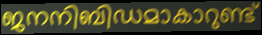
ജനനിബിഡമാകാറുണ്ട്